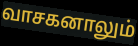
வாசகனாலும்